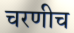
चरणीच